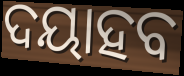
ଦୟାହବ